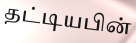
தட்டியபின்